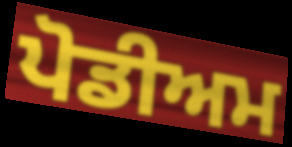
ਪੋਡੀਅਮ